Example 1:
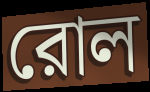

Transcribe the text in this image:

রোল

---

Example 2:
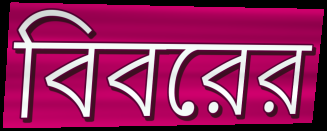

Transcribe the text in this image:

বিবরের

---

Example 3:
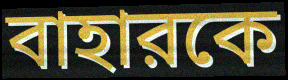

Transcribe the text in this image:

বাহারকে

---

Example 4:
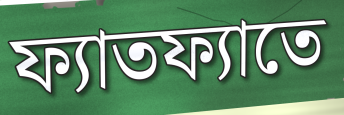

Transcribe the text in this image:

ফ্যাতফ্যাতে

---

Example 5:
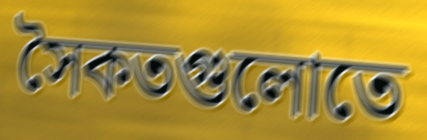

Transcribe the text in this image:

সৈকতগুলোতে